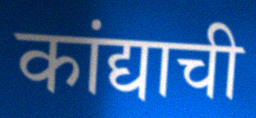
कांद्याची